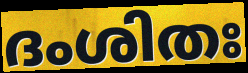
ദംശിതഃ